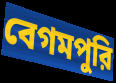
বেগমপুরি